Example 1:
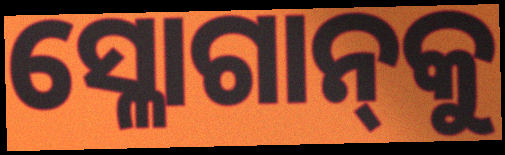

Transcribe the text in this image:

ସ୍ଳୋଗାନ୍‌କୁ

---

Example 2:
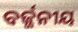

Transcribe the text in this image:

ବର୍ଜ୍ଜନୀୟ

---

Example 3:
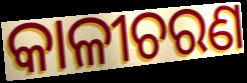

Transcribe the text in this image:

କାଳୀଚରଣ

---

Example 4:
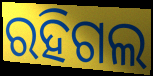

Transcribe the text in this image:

ରହିଗଲ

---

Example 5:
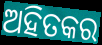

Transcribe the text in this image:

ଅହିତକର